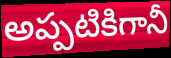
అప్పటికిగానీ